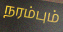
நரம்பும்